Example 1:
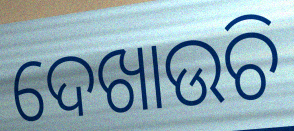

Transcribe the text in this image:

ଦେଖାଉଚି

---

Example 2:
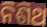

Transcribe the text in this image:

ନିଶିଥ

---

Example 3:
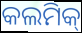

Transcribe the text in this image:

କଲମିକ୍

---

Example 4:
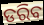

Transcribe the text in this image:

ଡରିବ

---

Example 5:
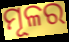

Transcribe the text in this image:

ମୂଳର